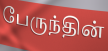
பேருந்தின்